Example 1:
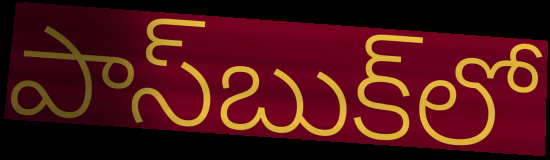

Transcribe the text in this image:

పాస్‌బుక్‌లో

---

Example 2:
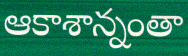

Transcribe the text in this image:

ఆకాశాన్నంతా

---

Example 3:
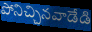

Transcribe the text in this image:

పోనిచ్చినవాడేడి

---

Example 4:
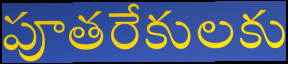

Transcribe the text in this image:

పూతరేకులకు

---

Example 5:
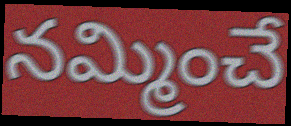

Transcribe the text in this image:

నమ్మించే